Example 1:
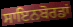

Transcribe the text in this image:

ਸਾਇਨਬੋਰਡਾਂ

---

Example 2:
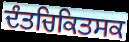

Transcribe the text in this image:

ਦੰਤਚਿਕਿਤਸਕ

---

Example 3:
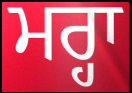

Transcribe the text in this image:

ਮਰ੍ਹਾ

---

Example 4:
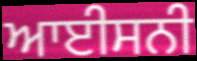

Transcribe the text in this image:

ਆਈਸਨੀ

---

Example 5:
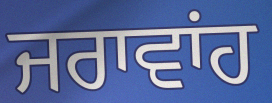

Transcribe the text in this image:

ਜਰਾਵਾਂਹ